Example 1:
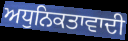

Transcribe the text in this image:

ਅਧੁਨਿਕਤਾਵਾਦੀ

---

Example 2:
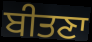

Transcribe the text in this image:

ਬੀਤਣਾ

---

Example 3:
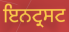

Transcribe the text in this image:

ਇਨਟ੍ਰਸਟ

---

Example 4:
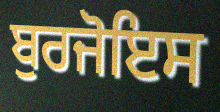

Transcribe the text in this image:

ਬੁਰਜੋਇਸ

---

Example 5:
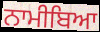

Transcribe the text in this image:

ਨਾਮੀਬਿਆ